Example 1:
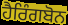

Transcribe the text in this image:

ਹੈਰਿੰਗਬੋਨ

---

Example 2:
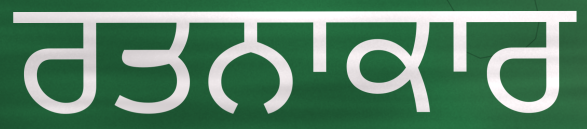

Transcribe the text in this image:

ਰਤਨਾਕਾਰ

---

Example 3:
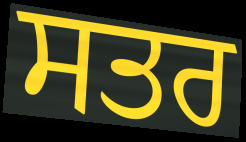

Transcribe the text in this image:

ਸਤਰ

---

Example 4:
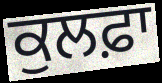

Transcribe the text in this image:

ਕੁਲਫ਼ਾ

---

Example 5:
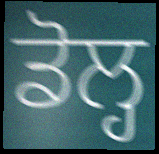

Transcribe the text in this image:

ਡੋਲ੍ਹ